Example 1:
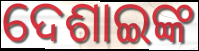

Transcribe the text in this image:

ଦେଶାଇଙ୍କ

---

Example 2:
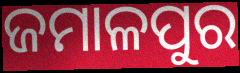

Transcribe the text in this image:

ଜମାଳପୁର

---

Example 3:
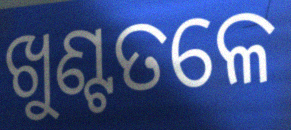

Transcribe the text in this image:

ଖୁଣ୍ଟତଳେ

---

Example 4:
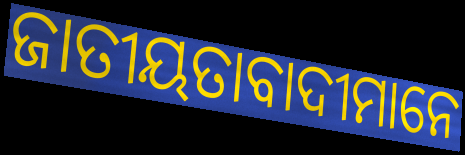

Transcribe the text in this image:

ଜାତୀୟତାବାଦୀମାନେ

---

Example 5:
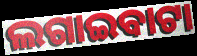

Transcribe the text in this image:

ଲଗାଇବାଟା